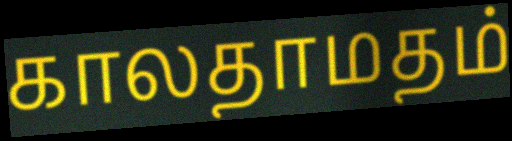
காலதாமதம்